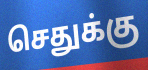
செதுக்கு